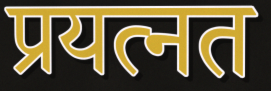
प्रयत्नत